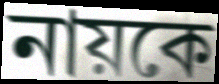
নায়কে